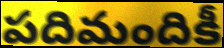
పదిమందికీ